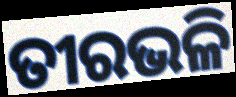
ତୀରଭଳି